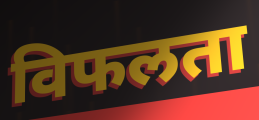
विफलता